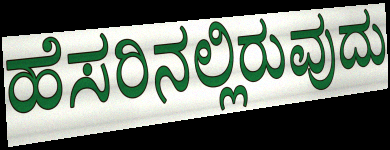
ಹೆಸರಿನಲ್ಲಿರುವುದು